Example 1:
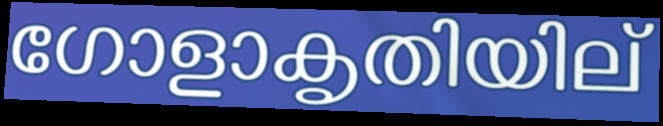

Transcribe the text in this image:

ഗോളാകൃതിയില്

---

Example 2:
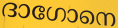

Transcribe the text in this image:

ദാഗോനെ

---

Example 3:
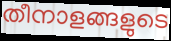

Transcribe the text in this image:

തീനാളങ്ങളുടെ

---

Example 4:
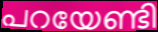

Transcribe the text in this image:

പറയേണ്ടി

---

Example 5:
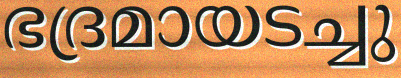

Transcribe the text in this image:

ഭദ്രമായടച്ചു